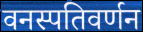
वनस्पतिवर्णन